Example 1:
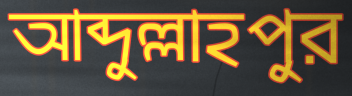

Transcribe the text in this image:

আব্দুল্লাহপুর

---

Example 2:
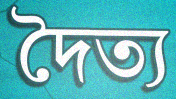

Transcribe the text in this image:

দৈত্য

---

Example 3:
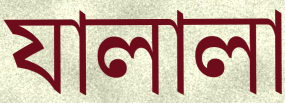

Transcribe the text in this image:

যালালা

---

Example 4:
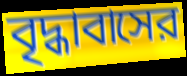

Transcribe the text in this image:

বৃদ্ধাবাসের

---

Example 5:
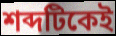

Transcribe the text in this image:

শব্দটিকেই